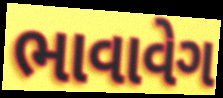
ભાવાવેગ